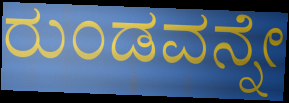
ರುಂಡವನ್ನೇ